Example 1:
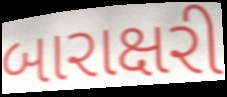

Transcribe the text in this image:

બારાક્ષરી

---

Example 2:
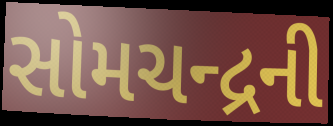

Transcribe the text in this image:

સોમચન્દ્રની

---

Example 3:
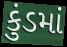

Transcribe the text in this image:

કુંડમાં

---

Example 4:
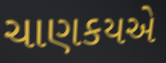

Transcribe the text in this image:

ચાણકયએ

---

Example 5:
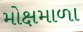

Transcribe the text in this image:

મોક્ષમાળા